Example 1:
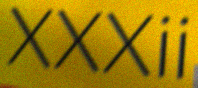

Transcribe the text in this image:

XXXii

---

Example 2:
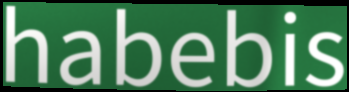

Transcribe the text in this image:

habebis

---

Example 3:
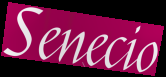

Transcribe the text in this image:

Senecio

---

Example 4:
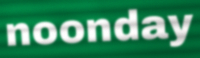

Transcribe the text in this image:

noonday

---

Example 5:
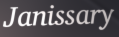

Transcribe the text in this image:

Janissary